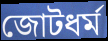
জোটধর্ম